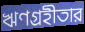
ঋণগ্রহীতার